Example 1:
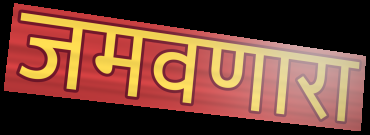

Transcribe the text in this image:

जमवणारा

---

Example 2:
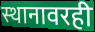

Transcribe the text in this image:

स्थानावरही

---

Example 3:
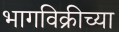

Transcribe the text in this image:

भागविक्रीच्या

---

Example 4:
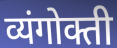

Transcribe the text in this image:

व्यंगोक्ती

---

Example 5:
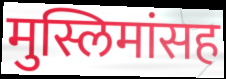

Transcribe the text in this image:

मुस्लिमांसह